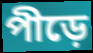
পীড়ে